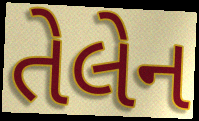
તેલેન